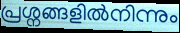
പ്രശ്നങ്ങളിൽനിന്നും